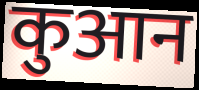
कुआन